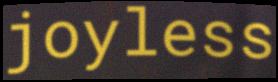
joyless